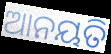
ଆନୟତି